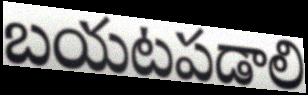
బయటపడాలి